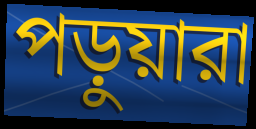
পড়ুয়ারা